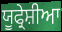
ਯੂਫ੍ਰੇਸ਼ੀਆ